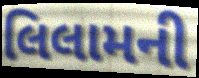
લિલામની